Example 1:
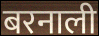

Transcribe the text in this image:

बरनाली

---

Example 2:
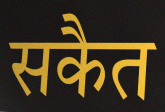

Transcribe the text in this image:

सकैत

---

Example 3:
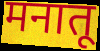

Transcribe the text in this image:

मनातू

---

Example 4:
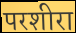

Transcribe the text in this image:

परशीरा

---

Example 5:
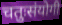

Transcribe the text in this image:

चतुःसंयोगी